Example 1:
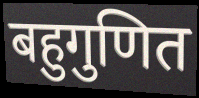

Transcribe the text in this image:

बहुगुणित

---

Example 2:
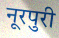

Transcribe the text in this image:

नूरपुरी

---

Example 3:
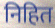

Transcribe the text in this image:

निहित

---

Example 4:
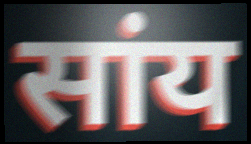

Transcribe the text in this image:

सांय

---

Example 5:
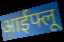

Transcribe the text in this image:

आईफ्लू